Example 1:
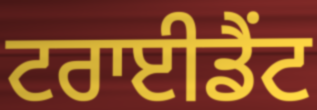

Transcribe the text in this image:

ਟਰਾਈਡੈਂਟ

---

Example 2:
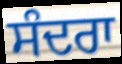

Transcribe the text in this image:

ਸੰਦਰਾ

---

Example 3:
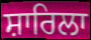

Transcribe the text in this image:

ਸ਼ਾਰਿਲਾ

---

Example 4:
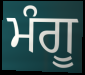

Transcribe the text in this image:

ਮੰਗੂ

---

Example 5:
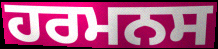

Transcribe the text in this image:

ਹਰਮਨਸ